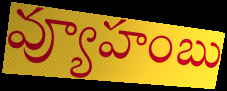
వ్యూహంబు